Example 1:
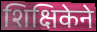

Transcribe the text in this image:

शिक्षिकेने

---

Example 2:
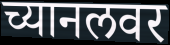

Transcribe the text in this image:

च्यानलवर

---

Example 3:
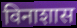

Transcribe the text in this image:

विनाशास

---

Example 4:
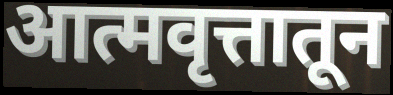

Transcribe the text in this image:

आत्मवृत्तातून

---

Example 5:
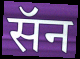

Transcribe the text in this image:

सॅन